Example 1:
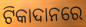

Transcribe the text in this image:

ଟିକାଦାନରେ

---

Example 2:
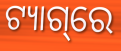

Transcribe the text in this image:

ଟ୍ୟାଗ୍‌ରେ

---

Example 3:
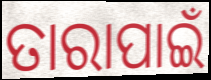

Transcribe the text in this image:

ତାରାପାଇଁ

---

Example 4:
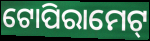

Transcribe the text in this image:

ଟୋପିରାମେଟ୍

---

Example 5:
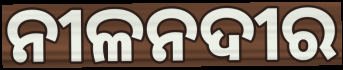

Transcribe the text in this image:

ନୀଳନଦୀର